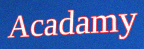
Acadamy